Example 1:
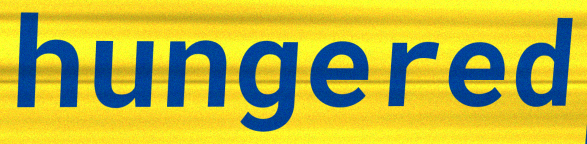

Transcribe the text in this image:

hungered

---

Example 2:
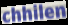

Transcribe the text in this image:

chhilen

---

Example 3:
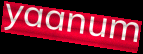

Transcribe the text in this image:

yaanum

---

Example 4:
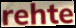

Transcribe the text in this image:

rehte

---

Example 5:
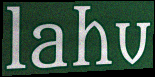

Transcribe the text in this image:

lahu